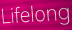
Lifelong